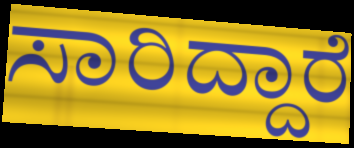
ಸಾರಿದ್ದಾರೆ